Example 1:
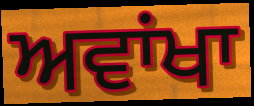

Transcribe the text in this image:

ਅਵਾਂਖਾ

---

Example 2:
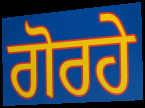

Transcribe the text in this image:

ਗੋਰਹੇ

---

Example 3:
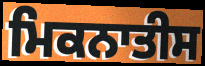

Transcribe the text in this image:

ਮਿਕਨਾਤੀਸ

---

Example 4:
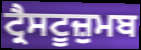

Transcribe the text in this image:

ਟ੍ਰੈਸਟੂਜ਼ੁਮਬ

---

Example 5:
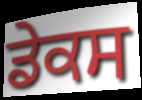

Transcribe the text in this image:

ਡੇਕਸ